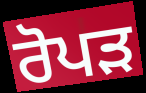
ਰੋਪਡ਼